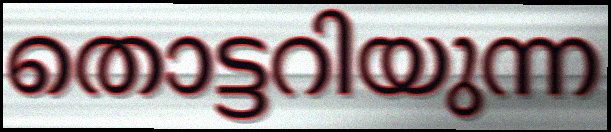
തൊട്ടറിയുന്ന